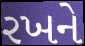
રખને